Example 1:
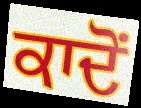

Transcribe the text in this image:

ਕਾਦੋਂ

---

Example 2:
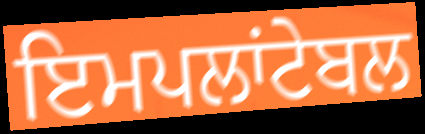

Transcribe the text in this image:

ਇਮਪਲਾਂਟੇਬਲ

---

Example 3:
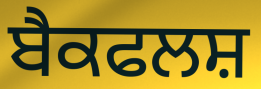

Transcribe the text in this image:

ਬੈਕਫਲਸ਼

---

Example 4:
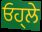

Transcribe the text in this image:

ਓਹ੍ਲੇ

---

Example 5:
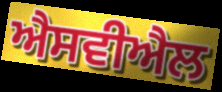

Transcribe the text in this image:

ਐਸਵੀਐਲ